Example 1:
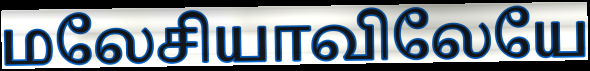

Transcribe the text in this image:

மலேசியாவிலேயே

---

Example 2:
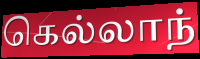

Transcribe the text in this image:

கெல்லாந்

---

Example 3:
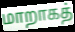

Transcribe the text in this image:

மாறாகத்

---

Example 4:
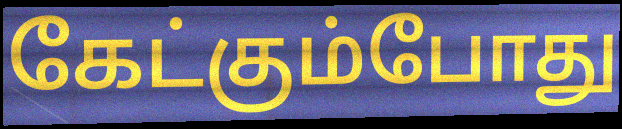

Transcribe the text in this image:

கேட்கும்போது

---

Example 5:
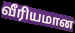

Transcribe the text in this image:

வீரியமான